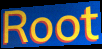
Root